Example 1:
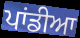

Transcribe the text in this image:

ਪਾਂਡੀਆ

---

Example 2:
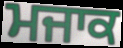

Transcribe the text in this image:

ਮਜਾਕ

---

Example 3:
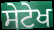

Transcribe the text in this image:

ਸੇਟੇਖ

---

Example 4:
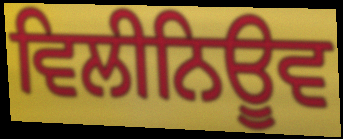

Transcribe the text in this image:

ਵਿਲੀਨਿਊਵ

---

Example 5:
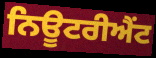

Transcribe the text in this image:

ਨਿਊਟਰੀਐਂਟ